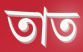
তাত